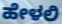
ಹೇಳಲಿ